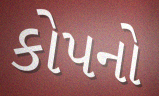
કોપનો